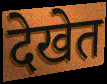
देखेत